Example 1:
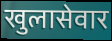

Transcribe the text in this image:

खुलासेवार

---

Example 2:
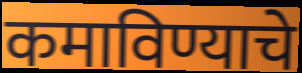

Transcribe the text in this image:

कमाविण्याचे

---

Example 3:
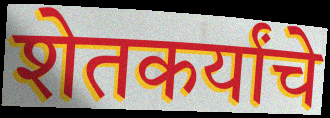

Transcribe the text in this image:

शेतकर्यांचे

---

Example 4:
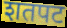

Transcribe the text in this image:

शतपट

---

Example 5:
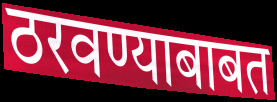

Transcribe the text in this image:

ठरवण्याबाबत